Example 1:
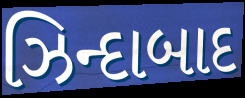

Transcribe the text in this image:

ઝિન્દાબાદ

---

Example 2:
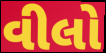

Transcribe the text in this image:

વીલો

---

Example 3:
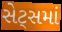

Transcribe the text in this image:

સેટ્સમાં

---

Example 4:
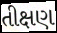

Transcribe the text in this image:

તીક્ષણ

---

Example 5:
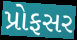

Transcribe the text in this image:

પ્રોફસર